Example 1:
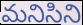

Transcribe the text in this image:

మనిసిని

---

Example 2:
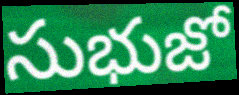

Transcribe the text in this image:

సుభుజో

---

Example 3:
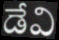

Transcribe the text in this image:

డేవి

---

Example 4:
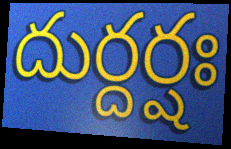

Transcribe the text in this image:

దుర్దర్షః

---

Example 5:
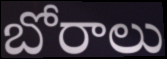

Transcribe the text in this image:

బోరాలు